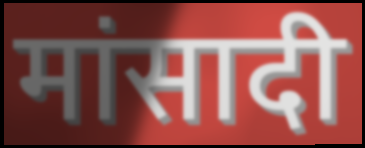
मांसादी